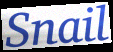
Snail